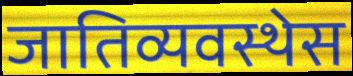
जातिव्यवस्थेस